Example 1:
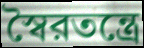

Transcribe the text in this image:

স্বৈরতন্ত্রে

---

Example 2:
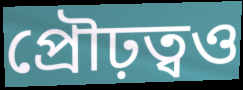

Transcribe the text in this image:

প্রৌঢ়ত্বও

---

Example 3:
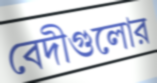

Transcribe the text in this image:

বেদীগুলোর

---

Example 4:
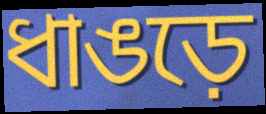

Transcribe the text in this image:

ধাঙড়ে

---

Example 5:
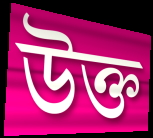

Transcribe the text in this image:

উক্ত